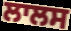
ਲਾਲਸ